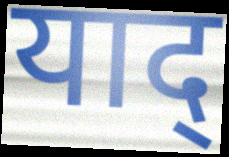
याद्